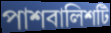
পাশবালিশটি